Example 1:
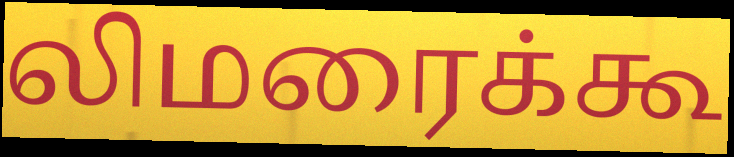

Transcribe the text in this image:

லிமரைக்கூ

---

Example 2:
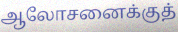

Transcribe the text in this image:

ஆலோசனைக்குத்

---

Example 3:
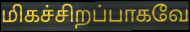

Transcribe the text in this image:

மிகச்சிறப்பாகவே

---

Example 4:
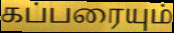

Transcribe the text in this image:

கப்பரையும்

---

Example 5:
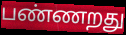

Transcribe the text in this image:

பண்ணறது